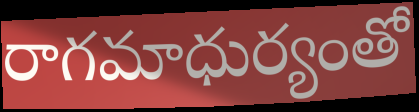
రాగమాధుర్యంతో